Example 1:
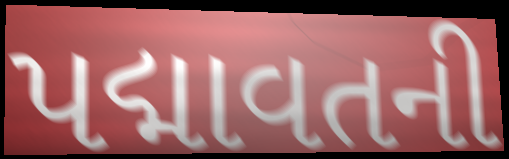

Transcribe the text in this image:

પદ્માવતની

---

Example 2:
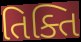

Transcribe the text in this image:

તિક્તિ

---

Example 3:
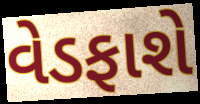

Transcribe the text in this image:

વેડફાશે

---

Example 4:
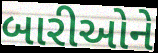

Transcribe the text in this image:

બારીઓને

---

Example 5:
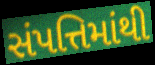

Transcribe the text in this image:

સંપત્તિમાંથી